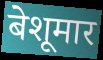
बेशूमार